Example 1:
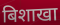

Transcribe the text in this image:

बिशाखा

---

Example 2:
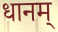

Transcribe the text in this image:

धानम्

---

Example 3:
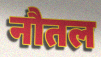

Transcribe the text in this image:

नौतल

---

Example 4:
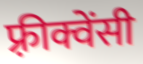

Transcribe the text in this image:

फ़्रीक्वेंसी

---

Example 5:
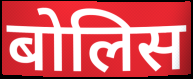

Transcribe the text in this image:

बोलिस